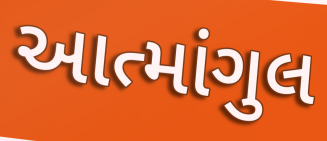
આત્માંગુલ